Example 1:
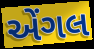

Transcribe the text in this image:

એંગલ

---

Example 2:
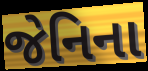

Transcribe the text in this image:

જેનિના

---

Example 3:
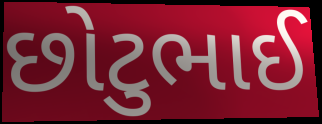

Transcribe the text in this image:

છોટુભાઈ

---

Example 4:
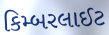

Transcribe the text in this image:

કિમ્બરલાઈટ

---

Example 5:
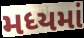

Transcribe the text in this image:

મધ્યમાં